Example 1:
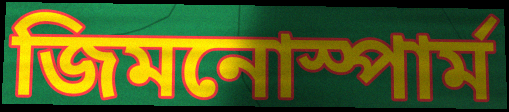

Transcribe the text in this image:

জিমনোস্পার্ম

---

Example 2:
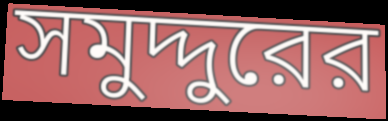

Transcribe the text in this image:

সমুদ্দুরের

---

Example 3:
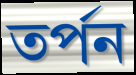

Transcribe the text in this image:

তর্পন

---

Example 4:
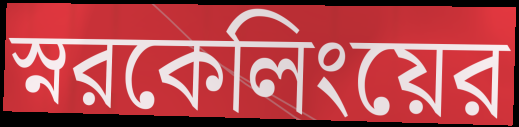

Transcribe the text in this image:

স্নরকেলিংয়ের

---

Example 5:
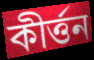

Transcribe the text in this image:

কীর্ত্তন